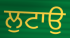
ਲੁਟਾਉ